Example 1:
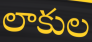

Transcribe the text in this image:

లాకుల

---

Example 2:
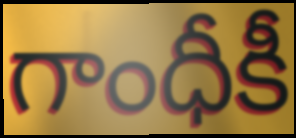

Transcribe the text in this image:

గాంధీకీ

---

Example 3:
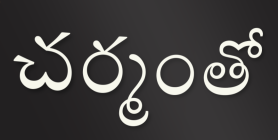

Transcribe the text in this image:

చర్మంతో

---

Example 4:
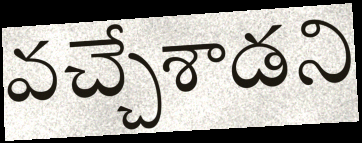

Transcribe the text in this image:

వచ్చేశాడని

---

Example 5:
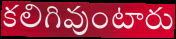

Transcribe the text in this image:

కలిగివుంటారు